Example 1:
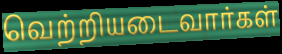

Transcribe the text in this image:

வெற்றியடைவார்கள்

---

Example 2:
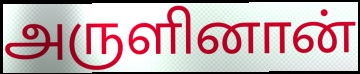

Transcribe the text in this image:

அருளினான்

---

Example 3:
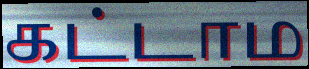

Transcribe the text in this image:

கட்டாம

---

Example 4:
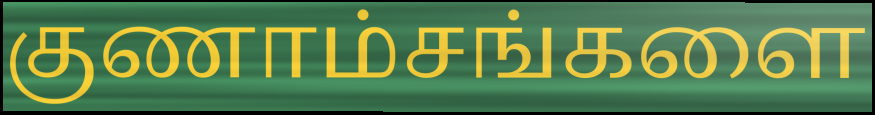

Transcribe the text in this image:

குணாம்சங்களை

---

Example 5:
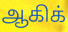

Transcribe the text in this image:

ஆகிக்